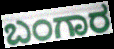
ಬಂಗಾರ